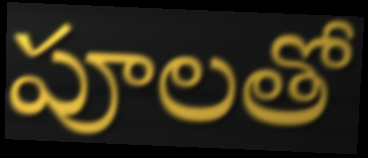
పూలతో